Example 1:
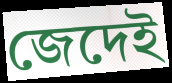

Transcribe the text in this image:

জেদেই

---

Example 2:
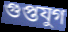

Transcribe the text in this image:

গুপ্তযুগ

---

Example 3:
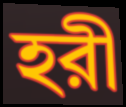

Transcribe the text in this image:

হরী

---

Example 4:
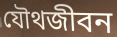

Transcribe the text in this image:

যৌথজীবন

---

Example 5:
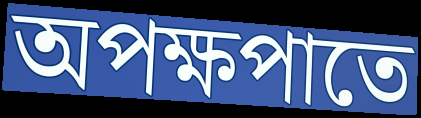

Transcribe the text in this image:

অপক্ষপাতে